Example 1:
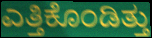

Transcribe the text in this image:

ಎತ್ತಿಕೊಂಡಿತ್ತು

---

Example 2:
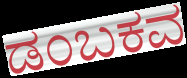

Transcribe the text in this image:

ಡಂಬಕವ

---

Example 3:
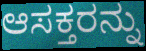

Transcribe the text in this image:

ಆಸಕ್ತರನ್ನು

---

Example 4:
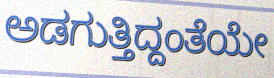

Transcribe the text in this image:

ಅಡಗುತ್ತಿದ್ದಂತೆಯೇ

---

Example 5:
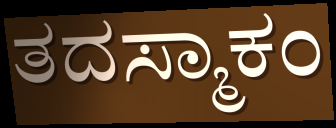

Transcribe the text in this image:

ತದಸ್ಮಾಕಂ